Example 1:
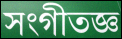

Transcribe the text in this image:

সংগীতজ্ঞ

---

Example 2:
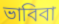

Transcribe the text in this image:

ভাবিবা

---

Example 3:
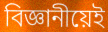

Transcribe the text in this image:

বিজ্ঞানীয়েই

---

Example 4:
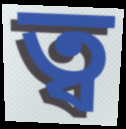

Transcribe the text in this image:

ত্ব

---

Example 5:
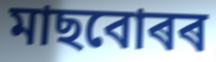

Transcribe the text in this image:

মাছবোৰৰ